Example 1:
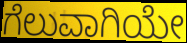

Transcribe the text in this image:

ಗೆಲುವಾಗಿಯೇ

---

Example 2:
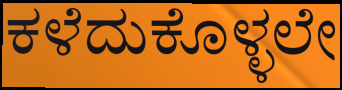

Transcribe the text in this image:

ಕಳೆದುಕೊಳ್ಳಲೇ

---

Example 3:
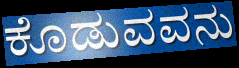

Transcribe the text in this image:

ಕೊಡುವವನು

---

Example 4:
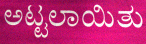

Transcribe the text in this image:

ಅಟ್ಟಲಾಯಿತು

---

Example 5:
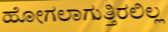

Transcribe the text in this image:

ಹೋಗಲಾಗುತ್ತಿರಲಿಲ್ಲ